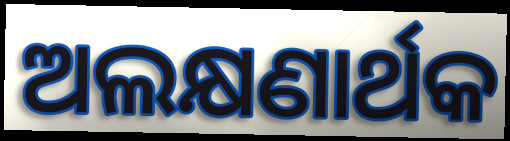
ଅଲକ୍ଷଣାର୍ଥକ